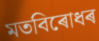
মতবিৰোধৰ